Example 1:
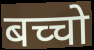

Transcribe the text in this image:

बच्चो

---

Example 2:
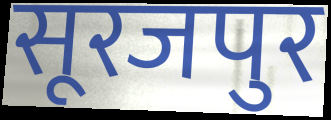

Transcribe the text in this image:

सूरजपुर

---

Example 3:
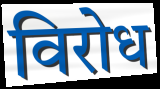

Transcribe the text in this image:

विरोध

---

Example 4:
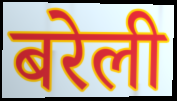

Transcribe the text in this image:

बरेली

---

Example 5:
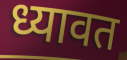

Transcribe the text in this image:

ध्यावत